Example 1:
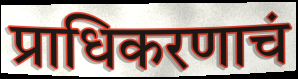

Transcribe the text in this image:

प्राधिकरणाचं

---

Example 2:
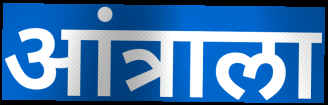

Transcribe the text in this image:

आंत्राला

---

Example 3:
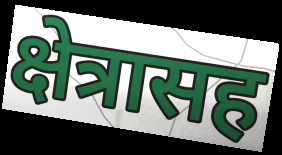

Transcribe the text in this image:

क्षेत्रासह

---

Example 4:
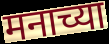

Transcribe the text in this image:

मनाच्या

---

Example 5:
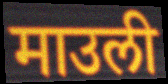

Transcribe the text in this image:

माउली